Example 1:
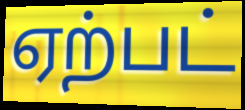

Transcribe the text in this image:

ஏற்பட்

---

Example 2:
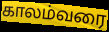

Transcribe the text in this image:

காலம்வரை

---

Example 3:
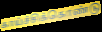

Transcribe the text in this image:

காய்ச்சிக்கொண்டு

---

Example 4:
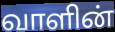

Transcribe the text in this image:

வாளின்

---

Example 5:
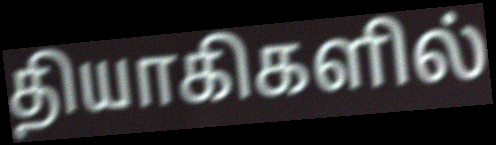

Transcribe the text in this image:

தியாகிகளில்